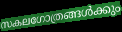
സകലഗോത്രങ്ങൾക്കും